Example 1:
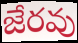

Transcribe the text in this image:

జేరవు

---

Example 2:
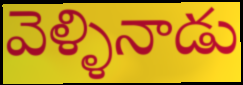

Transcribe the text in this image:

వెళ్ళినాడు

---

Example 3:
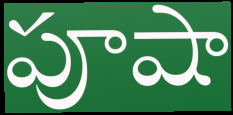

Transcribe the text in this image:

పూషా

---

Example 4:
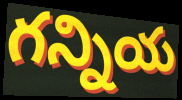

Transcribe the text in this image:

గన్నియ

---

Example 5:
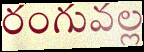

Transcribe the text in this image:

రంగువల్ల